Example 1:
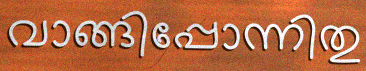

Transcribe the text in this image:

വാങ്ങിപ്പോന്നിതു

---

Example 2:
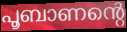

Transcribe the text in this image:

പൂബാണന്റെ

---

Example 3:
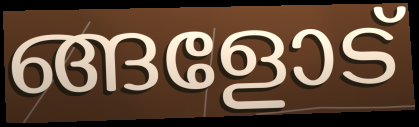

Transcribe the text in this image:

ങ്ങളോട്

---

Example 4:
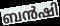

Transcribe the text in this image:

ബൻഷി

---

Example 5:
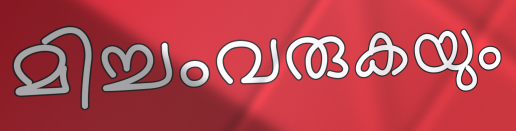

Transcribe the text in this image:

മിച്ചംവരുകയും